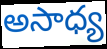
అసాధ్య